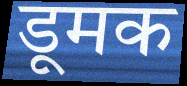
डूमक